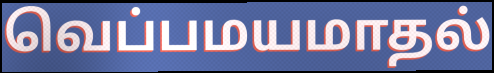
வெப்பமயமாதல்